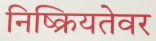
निष्क्रियतेवर